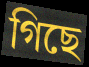
গিছে